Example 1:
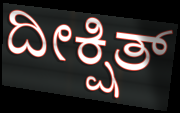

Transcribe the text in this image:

ದೀಕ್ಷಿತ್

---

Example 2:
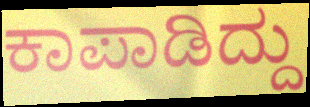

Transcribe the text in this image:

ಕಾಪಾಡಿದ್ದು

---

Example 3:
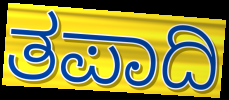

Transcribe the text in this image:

ತಪಾದಿ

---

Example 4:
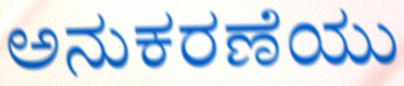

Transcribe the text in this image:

ಅನುಕರಣೆಯು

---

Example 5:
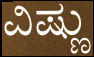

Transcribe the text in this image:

ವಿಷ್ಣು